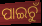
ପାଇଚୁଁ